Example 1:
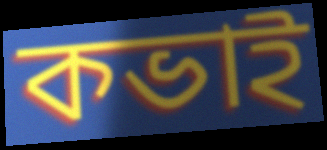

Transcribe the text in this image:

কভাই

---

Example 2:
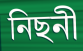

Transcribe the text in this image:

নিছনী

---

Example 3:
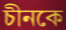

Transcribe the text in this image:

চীনকে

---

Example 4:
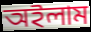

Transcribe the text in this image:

অইলাম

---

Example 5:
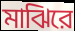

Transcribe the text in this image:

মাঝিরে